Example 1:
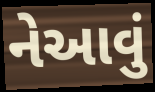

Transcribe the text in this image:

નેઆવું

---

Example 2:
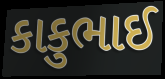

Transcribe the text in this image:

કાકુભાઈ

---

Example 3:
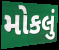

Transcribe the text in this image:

મોકલું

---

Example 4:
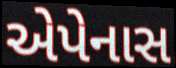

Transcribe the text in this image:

એપેનાસ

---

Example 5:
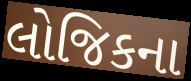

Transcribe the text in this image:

લોજિકના